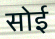
सोई